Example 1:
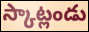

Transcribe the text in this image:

స్కాట్లండు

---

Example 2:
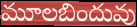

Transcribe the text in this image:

మూలబిందువు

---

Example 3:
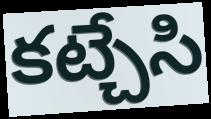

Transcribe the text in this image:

కట్చేసి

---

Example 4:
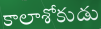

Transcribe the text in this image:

కాలాశోకుడు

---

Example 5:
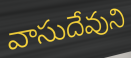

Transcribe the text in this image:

వాసుదేవుని